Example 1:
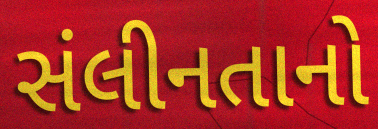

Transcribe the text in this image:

સંલીનતાનો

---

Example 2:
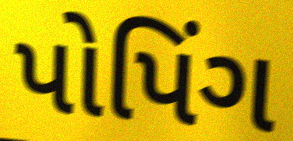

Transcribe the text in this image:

પોપિંગ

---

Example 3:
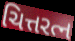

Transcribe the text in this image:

ચિત્તરત્ન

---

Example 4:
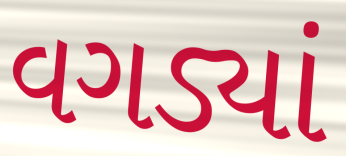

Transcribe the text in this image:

વગડ્યાં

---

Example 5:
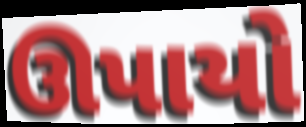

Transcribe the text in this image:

ઊપાયો